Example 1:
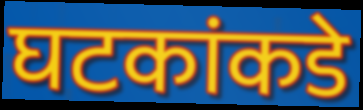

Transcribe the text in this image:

घटकांकडे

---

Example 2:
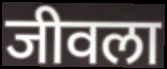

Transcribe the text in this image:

जीवला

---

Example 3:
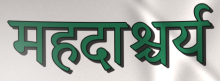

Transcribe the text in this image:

महदाश्चर्य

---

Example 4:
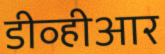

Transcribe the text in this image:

डीव्हीआर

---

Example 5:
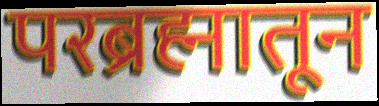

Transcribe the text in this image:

परब्रह्मातून